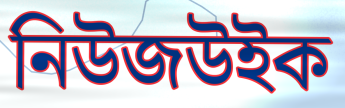
নিউজউইক